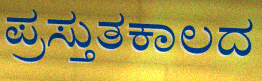
ಪ್ರಸ್ತುತಕಾಲದ